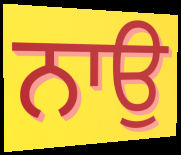
ਨਾਉ